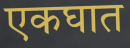
एकघात